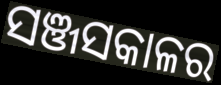
ସଞ୍ଜସକାଳର